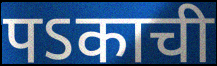
पऽकाची